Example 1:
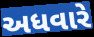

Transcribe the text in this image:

અધવારે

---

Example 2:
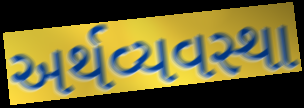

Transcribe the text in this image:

અર્થવ્યવસ્થા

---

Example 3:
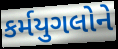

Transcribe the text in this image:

કર્મયુગલોને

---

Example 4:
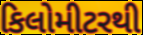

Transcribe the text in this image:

કિલોમીટરથી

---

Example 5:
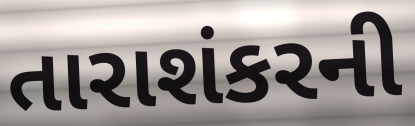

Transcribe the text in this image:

તારાશંકરની